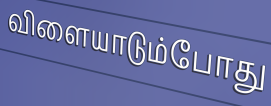
விளையாடும்போது